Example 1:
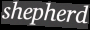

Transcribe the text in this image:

shepherd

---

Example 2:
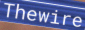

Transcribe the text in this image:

Thewire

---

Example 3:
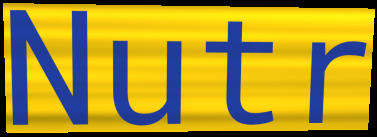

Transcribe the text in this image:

Nutr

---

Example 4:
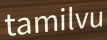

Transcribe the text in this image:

tamilvu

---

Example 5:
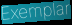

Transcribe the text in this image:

Exemplar